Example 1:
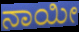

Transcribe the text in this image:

ನಾಯೀ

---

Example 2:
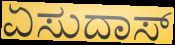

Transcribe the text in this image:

ಏಸುದಾಸ್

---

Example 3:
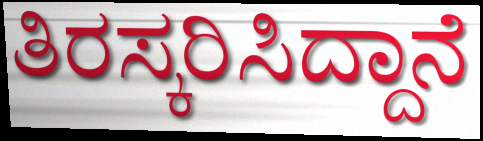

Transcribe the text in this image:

ತಿರಸ್ಕರಿಸಿದ್ದಾನೆ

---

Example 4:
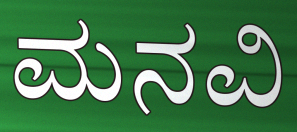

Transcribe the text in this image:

ಮನವಿ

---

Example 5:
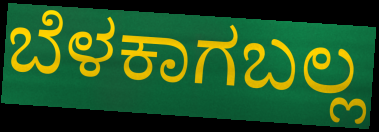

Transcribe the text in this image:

ಬೆಳಕಾಗಬಲ್ಲ